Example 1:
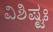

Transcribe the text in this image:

ವಿಶಿಷ್ಟಃ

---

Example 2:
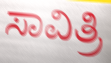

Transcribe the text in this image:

ಸಾವಿತ್ರಿ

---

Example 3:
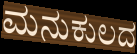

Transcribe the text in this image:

ಮನುಕುಲದ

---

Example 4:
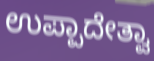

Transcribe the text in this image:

ಉಪ್ಪಾದೇತ್ವಾ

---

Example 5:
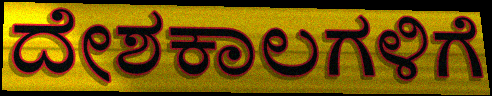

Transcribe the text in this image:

ದೇಶಕಾಲಗಳಿಗೆ